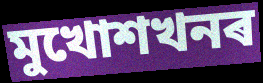
মুখোশখনৰ